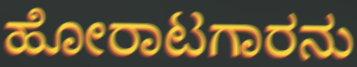
ಹೋರಾಟಗಾರನು